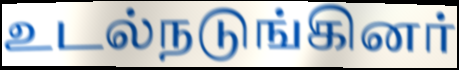
உடல்நடுங்கினர்